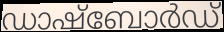
ഡാഷ്ബോർഡ്